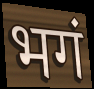
भगं